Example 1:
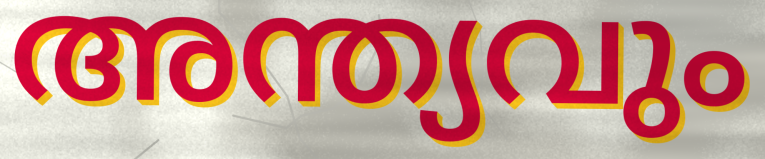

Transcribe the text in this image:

അന്ത്യവും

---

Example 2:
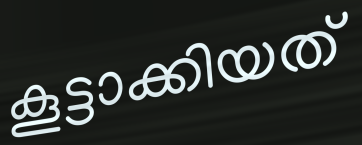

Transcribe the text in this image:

കൂട്ടാക്കിയത്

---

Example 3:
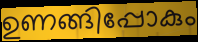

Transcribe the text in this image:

ഉണങ്ങിപ്പോകും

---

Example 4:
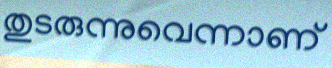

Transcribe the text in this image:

തുടരുന്നുവെന്നാണ്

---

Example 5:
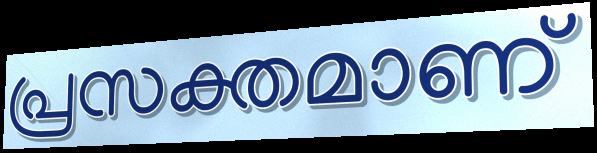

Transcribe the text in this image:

പ്രസക്തമാണ്